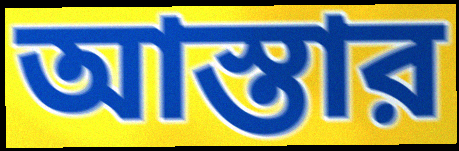
আস্তার